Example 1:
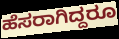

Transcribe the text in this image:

ಹೆಸರಾಗಿದ್ದರೂ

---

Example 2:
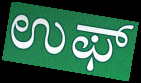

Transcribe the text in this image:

ಉಫ್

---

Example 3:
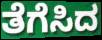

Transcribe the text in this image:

ತೆಗೆಸಿದ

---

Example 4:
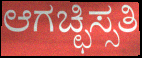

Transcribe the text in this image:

ಆಗಚ್ಛಿಸ್ಸತಿ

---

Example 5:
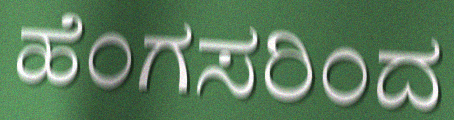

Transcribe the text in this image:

ಹೆಂಗಸರಿಂದ